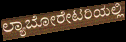
ಲ್ಯಾಬೋರೇಟರಿಯಲ್ಲಿ